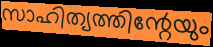
സാഹിത്യത്തിന്റേയും